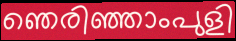
ഞെരിഞ്ഞാംപുളി